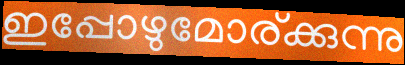
ഇപ്പോഴുമോര്ക്കുന്നു